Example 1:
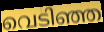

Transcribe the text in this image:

വെടിഞ്ഞ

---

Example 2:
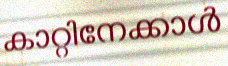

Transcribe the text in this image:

കാറ്റിനേക്കാൾ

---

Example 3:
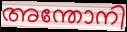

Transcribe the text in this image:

അന്തോനി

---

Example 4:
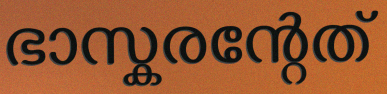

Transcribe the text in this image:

ഭാസ്കരന്റേത്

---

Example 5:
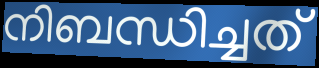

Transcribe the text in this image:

നിബന്ധിച്ചത്